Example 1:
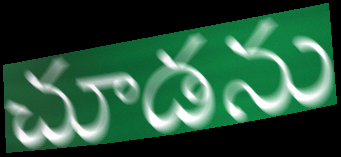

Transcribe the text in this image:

చూడను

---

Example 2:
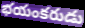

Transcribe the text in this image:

భయంకరుడు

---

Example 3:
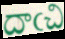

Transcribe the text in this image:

దాఁచి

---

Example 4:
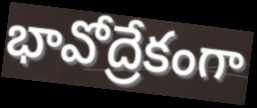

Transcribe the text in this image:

భావోద్రేకంగా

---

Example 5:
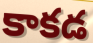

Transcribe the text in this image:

కాకడ